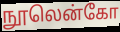
நூலென்கோ